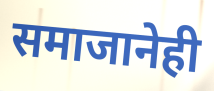
समाजानेही